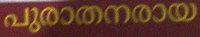
പുരാതനരായ